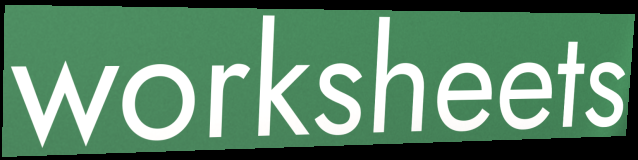
worksheets